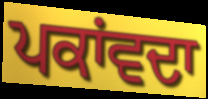
ਪਕਾਂਵਦਾ